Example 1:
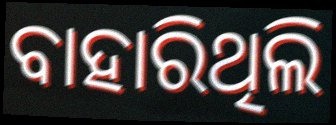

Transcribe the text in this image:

ବାହାରିଥିଲି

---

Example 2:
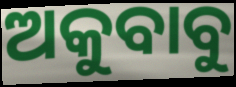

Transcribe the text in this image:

ଅକୁବାବୁ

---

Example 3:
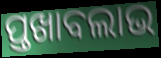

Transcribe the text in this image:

ପ୍ତଖାବଲାଭ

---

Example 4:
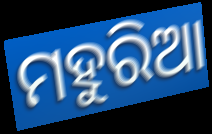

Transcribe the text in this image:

ମହୁରିଆ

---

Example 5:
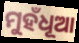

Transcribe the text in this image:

ମୁହଁଧୂଆ